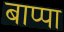
बाप्पा